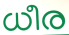
ധീര